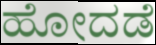
ಹೋದಡೆ